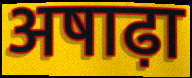
अषाढ़ा